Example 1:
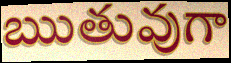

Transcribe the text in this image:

ఋతువుగా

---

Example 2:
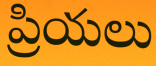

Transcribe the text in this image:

ప్రియలు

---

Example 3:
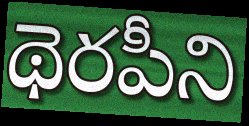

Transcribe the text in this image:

థెరపీని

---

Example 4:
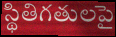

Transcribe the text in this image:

స్థితిగతులపై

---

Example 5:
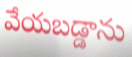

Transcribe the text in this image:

వేయబడ్డాను